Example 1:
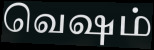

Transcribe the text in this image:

வெஷம்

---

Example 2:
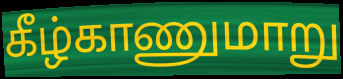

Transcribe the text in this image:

கீழ்காணுமாறு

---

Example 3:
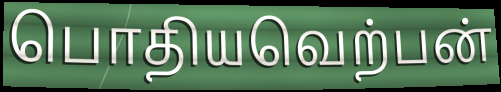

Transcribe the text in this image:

பொதியவெற்பன்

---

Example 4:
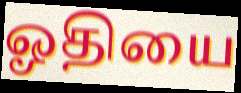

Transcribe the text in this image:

ஓதியை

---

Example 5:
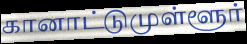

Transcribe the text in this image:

கானாட்டுமுள்ளூர்